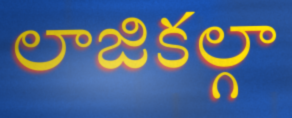
లాజికల్గా